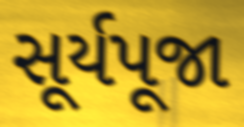
સૂર્યપૂજા